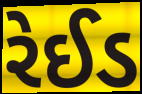
રેઈડ